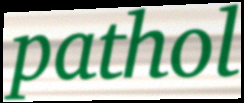
pathol